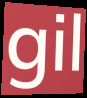
gil